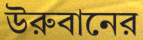
উরুবানের